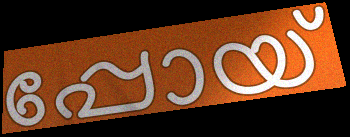
പ്പോയ്